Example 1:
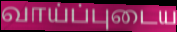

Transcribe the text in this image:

வாய்ப்புடைய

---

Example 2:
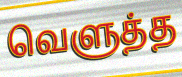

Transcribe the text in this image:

வெளுத்த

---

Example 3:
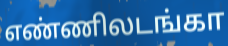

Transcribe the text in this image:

எண்ணிலடங்கா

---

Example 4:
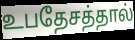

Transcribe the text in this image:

உபதேசத்தால்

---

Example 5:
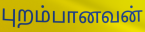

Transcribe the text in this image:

புறம்பானவன்